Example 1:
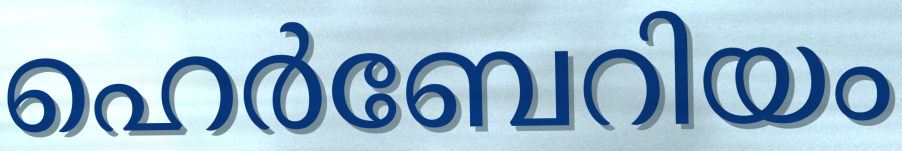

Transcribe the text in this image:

ഹെർബേറിയം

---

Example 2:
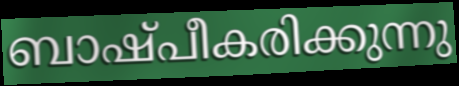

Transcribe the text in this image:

ബാഷ്പീകരിക്കുന്നു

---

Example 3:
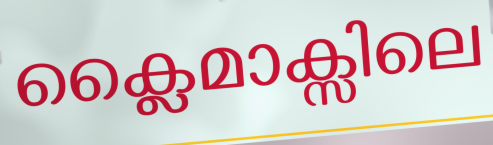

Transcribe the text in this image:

ക്ലൈമാക്സിലെ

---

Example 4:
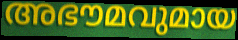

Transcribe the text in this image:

അഭൗമവുമായ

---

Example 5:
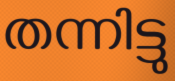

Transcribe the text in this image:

തന്നിട്ടു